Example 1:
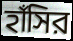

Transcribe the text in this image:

হাঁসির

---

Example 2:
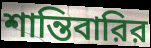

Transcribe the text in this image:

শান্তিবারির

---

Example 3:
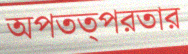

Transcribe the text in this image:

অপতত্পরতার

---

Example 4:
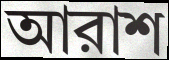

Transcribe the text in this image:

আরাশ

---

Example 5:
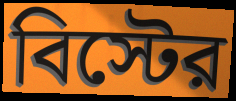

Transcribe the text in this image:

বিস্টের